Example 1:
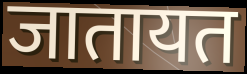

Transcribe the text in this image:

जातायत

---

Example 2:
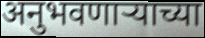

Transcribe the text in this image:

अनुभवणार्‍याच्या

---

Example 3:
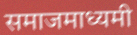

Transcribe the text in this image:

समाजमाध्यमी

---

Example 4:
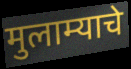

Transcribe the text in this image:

मुलाम्याचे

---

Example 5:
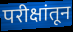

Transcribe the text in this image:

परीक्षांतून